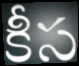
కీస